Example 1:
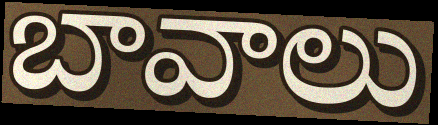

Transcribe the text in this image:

బావాలు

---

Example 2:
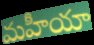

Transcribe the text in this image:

మహీయా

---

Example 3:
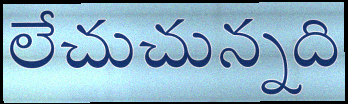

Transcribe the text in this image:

లేచుచున్నది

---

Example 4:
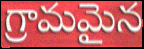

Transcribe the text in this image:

గ్రామమైన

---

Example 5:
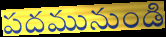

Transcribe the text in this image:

పదమునుండి